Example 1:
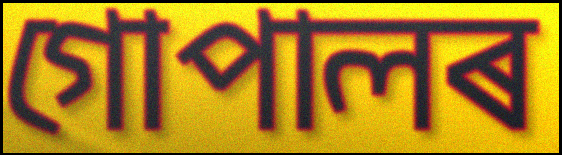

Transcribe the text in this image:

গোপালৰ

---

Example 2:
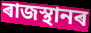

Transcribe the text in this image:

ৰাজস্থানৰ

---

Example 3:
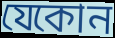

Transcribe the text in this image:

যেকোন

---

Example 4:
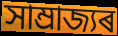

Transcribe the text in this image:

সাম্ৰাজ্যৰ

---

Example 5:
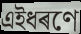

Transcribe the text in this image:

এইধৰণে